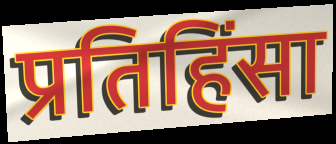
प्रतिहिंसा